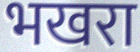
भखरा